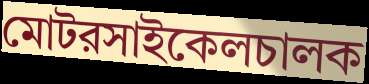
মোটরসাইকেলচালক